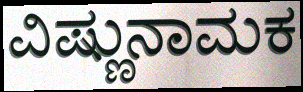
ವಿಷ್ಣುನಾಮಕ